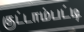
குட்டாம்பட்டி